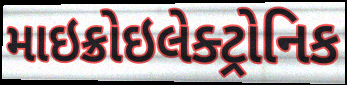
માઇક્રોઇલેક્ટ્રોનિક